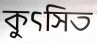
কুৎসিত